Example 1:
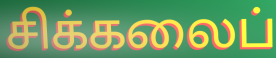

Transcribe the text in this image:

சிக்கலைப்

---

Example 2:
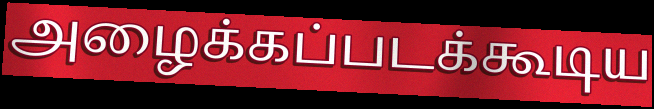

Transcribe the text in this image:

அழைக்கப்படக்கூடிய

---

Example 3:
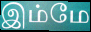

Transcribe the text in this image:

இம்மே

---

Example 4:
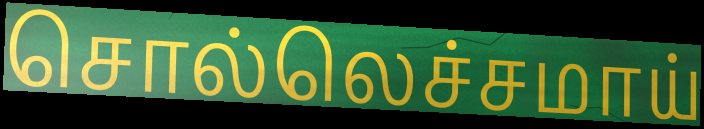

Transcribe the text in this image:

சொல்லெச்சமாய்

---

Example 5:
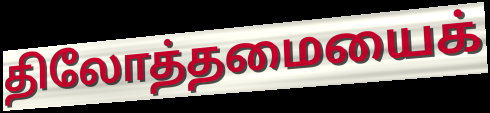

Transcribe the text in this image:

திலோத்தமையைக்